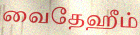
வைதேஹீம்